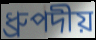
ধ্রুপদীয়